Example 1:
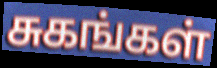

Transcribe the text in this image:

சுகங்கள்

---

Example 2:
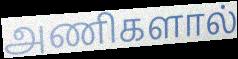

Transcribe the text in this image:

அணிகளால்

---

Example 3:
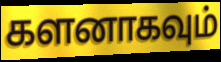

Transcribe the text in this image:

களனாகவும்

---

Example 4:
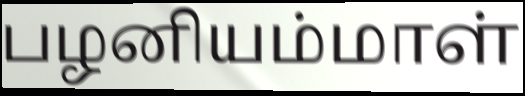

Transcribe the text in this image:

பழனியம்மாள்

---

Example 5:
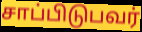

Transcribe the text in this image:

சாப்பிடுபவர்